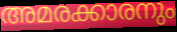
അമരക്കാരനും